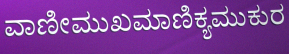
ವಾಣೀಮುಖಮಾಣಿಕ್ಯಮುಕುರ